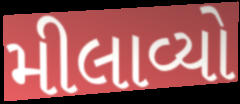
મીલાવ્યો